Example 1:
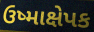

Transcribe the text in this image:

ઉષ્માક્ષેપક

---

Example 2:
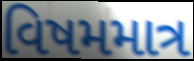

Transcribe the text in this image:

વિષમમાત્ર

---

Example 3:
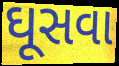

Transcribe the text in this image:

ઘૂસવા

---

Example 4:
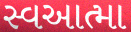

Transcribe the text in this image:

સ્વઆત્મા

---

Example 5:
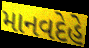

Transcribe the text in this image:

માનવદેહે